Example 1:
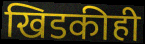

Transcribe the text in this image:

खिडकीही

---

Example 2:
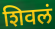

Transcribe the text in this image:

शिवलं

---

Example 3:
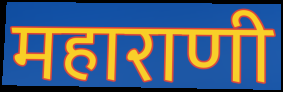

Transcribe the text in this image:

महाराणी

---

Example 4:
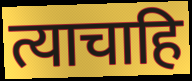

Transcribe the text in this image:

त्याचाहि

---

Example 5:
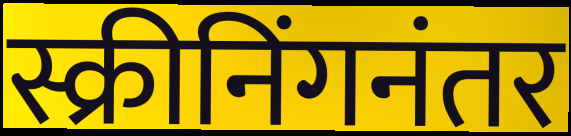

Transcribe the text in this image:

स्क्रीनिंगनंतर